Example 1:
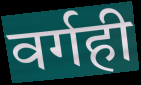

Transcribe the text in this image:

वर्गही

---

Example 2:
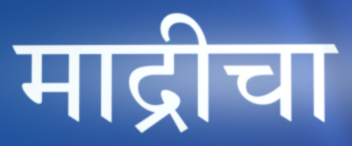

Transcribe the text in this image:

माद्रीचा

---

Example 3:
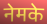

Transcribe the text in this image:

नेमके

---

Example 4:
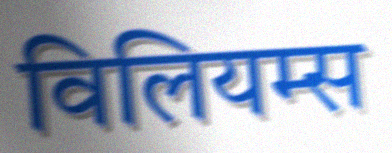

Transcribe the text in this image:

विलियम्स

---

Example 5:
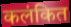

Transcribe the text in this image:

कलंकित